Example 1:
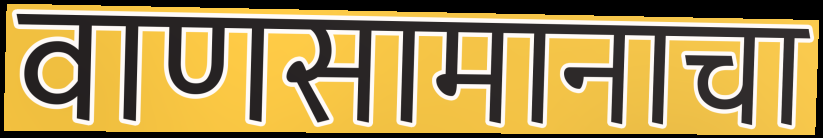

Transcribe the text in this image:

वाणसामानाचा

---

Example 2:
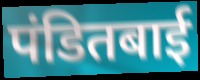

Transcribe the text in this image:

पंडितबाई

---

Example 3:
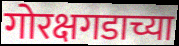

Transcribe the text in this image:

गोरक्षगडाच्या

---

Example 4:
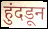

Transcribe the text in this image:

हुंदडून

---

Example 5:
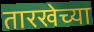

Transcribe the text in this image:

तारखेच्या